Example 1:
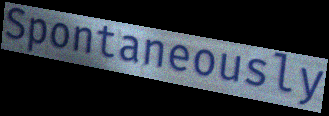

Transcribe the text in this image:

Spontaneously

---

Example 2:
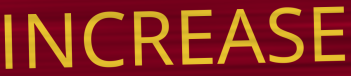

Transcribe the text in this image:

INCREASE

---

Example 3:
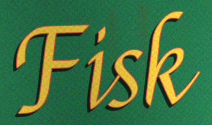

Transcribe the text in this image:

Fisk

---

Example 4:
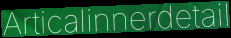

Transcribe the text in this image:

Articalinnerdetail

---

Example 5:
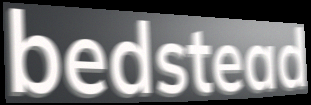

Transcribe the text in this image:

bedstead